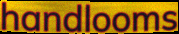
handlooms